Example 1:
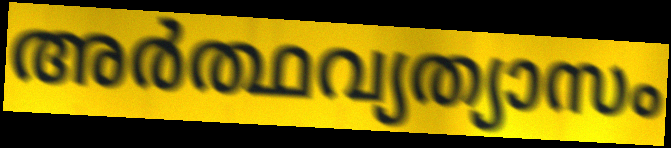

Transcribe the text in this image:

അർത്ഥവ്യത്യാസം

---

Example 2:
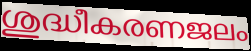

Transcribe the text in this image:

ശുദ്ധീകരണജലം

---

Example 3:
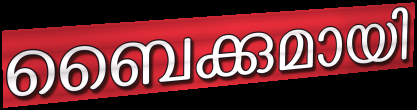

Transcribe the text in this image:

ബൈക്കുമായി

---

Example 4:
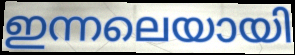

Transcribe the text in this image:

ഇന്നലെയായി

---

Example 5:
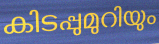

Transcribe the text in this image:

കിടപ്പുമുറിയും